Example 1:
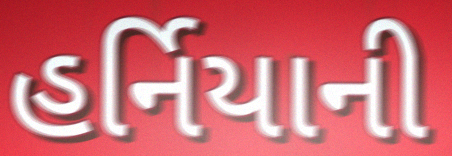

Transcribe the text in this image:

હર્નિયાની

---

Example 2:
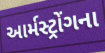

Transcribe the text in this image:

આર્મસ્ટ્રોંગના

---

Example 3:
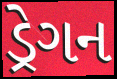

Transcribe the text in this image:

ડ્રેગન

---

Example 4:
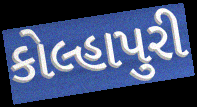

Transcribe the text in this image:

કોલ્હાપુરી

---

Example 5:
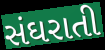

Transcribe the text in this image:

સંઘરાતી